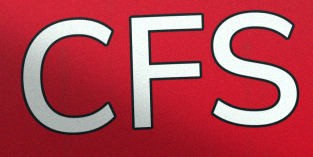
CFS